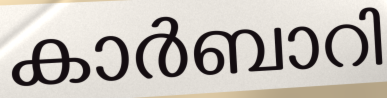
കാർബാറി